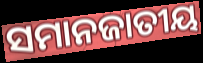
ସମାନଜାତୀୟ